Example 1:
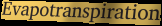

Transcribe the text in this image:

Evapotranspiration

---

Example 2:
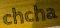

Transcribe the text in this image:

chcha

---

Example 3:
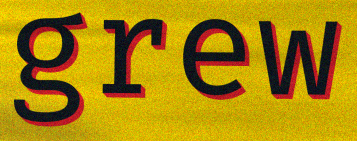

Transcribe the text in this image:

grew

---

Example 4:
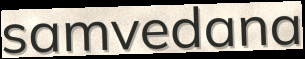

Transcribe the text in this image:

samvedana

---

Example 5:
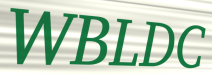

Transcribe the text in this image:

WBLDC